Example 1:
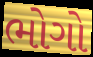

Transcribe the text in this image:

ભોગો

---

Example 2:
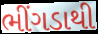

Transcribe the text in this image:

ભીંગડાથી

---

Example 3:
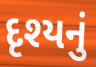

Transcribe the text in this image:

દૃશ્યનું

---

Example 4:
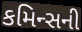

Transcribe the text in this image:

કમિન્સની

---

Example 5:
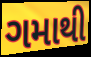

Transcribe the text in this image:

ગમાથી